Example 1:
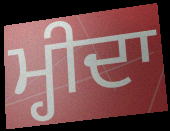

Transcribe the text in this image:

ਮ੍ਹੀਦਾ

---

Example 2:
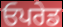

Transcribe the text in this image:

ਓਪਰੇਡ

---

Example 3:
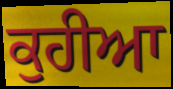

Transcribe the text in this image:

ਕੁਹੀਆ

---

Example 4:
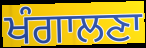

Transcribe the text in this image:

ਖੰਗਾਲਣਾ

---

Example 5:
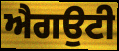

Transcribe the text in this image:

ਐਗਉਟੀ